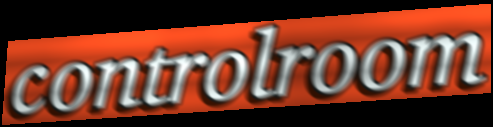
controlroom